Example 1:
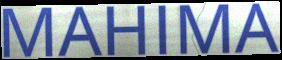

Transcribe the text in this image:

MAHIMA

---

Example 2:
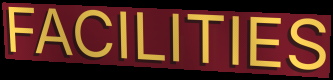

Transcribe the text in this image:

FACILITIES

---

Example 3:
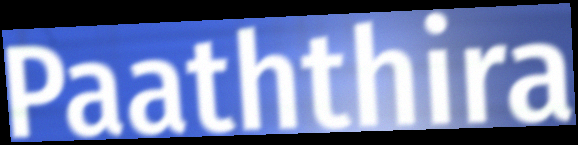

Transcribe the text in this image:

Paaththira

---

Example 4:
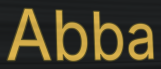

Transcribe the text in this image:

Abba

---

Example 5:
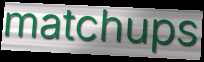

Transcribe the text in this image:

matchups